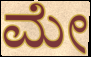
ಮೇ